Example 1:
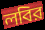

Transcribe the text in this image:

লবির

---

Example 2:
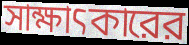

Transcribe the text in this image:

সাক্ষাৎকারের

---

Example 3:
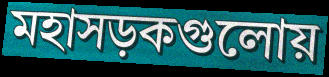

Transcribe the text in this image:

মহাসড়কগুলোয়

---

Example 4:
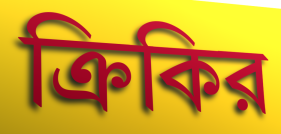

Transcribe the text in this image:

ক্রিকির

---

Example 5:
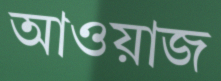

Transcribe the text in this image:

আওয়াজ